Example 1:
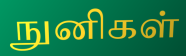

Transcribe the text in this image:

நுனிகள்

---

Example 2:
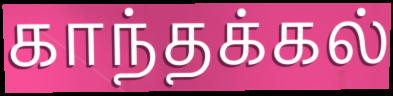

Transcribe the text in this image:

காந்தக்கல்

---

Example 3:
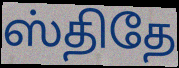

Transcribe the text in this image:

ஸ்திதே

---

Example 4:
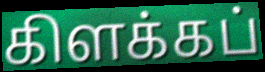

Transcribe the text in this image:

கிளக்கப்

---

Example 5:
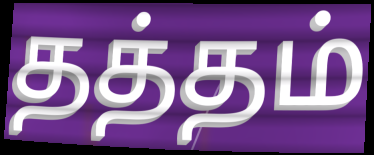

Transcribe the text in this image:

தத்தம்